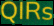
QIRs